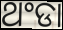
ଥଂଡା